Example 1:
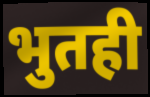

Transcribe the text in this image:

भुतही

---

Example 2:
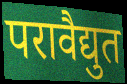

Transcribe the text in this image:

परावैद्युत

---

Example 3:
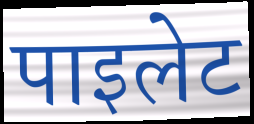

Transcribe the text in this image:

पाइलेट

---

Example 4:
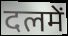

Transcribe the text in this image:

दलमें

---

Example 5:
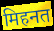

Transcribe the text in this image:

मिहनत